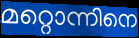
മറ്റൊന്നിനെ